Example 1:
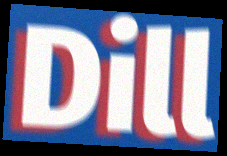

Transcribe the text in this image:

Dill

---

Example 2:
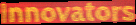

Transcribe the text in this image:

Innovators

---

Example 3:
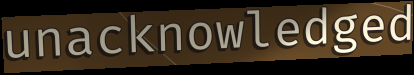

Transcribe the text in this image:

unacknowledged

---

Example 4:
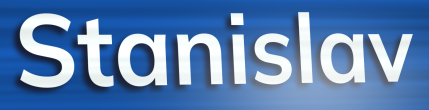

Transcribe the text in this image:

Stanislav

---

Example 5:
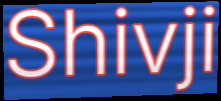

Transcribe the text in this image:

Shivji